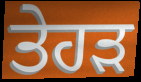
ਤੇਹੜ